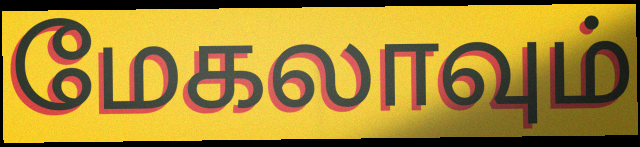
மேகலாவும்